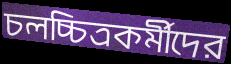
চলচ্চিত্রকর্মীদের